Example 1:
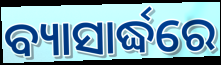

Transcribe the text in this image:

ବ୍ୟାସାର୍ଦ୍ଧରେ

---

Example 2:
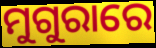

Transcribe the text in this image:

ମୁଗୁରାରେ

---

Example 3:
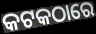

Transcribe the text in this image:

କଟକଠାରେ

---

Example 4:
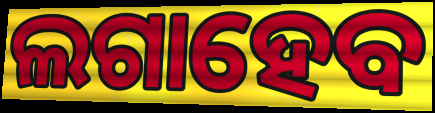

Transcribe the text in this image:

ଲଗାହେବ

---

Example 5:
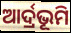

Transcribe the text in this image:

ଆର୍ଦ୍ରଭୂମି